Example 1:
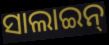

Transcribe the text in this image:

ସାଲାଇନ୍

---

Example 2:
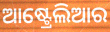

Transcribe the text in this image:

ଆଷ୍ଟ୍ରେଲିଆର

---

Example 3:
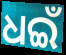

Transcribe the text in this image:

ଧଇଁ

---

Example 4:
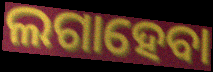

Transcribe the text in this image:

ଲଗାହେବା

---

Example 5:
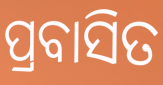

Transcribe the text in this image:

ପ୍ରବାସିତ